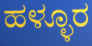
ಹಳ್ಳೂರ